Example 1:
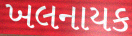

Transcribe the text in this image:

ખલનાયક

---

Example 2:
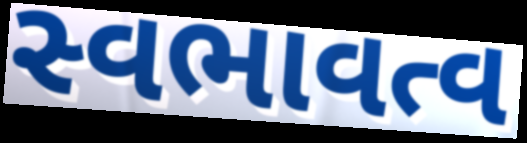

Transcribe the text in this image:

સ્વભાવત્વ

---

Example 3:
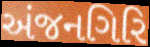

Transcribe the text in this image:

અંજનગિરિ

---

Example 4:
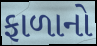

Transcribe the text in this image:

ફાળાનો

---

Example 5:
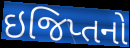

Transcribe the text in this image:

ઇજિપ્તનો